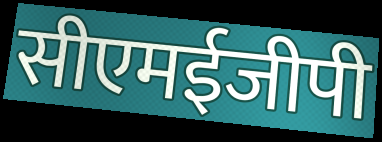
सीएमईजीपी